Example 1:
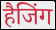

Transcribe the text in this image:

हैजिंग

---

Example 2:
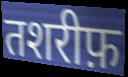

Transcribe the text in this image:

तशरीफ़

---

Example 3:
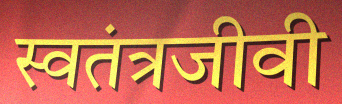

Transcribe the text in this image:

स्वतंत्रजीवी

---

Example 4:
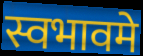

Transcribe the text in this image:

स्वभावमे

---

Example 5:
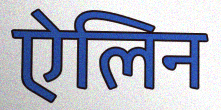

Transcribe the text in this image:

ऐलिन